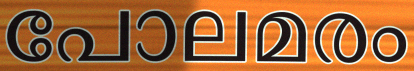
പോലമരം